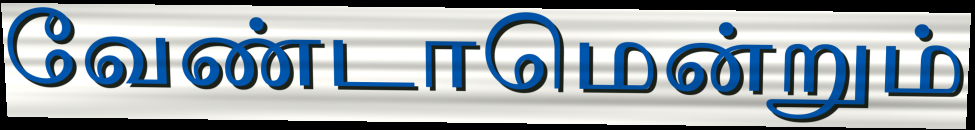
வேண்டாமென்றும்